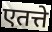
एतत्ते